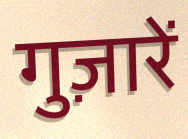
गुज़ारें